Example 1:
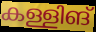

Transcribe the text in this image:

കള്ളിങ്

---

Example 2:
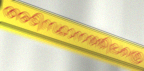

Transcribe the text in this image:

അടിസ്ഥാനത്തിലത്രെ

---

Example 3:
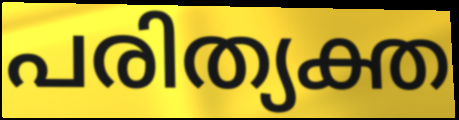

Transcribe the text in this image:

പരിത്യക്ത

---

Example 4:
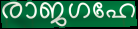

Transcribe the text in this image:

രാജഗഹേ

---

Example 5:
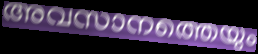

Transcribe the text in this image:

അവസാനത്തെയും